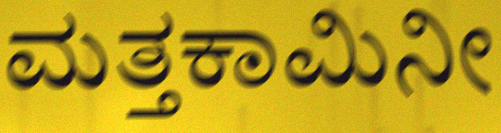
ಮತ್ತಕಾಮಿನೀ